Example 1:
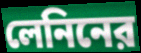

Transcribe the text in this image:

লেনিনের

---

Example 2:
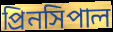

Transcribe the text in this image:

প্রিনসিপাল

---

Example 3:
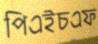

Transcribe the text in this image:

পিএইচএফ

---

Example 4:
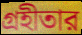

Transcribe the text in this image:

গ্রহীতার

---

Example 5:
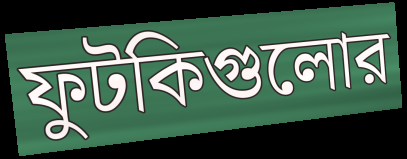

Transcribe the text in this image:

ফুটকিগুলোর